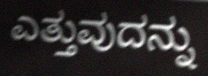
ಎತ್ತುವುದನ್ನು